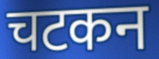
चटकन